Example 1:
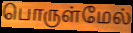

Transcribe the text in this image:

பொருள்மேல்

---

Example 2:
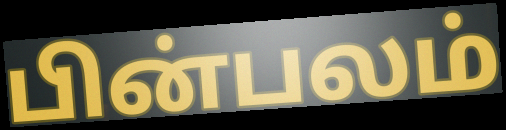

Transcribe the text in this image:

பின்பலம்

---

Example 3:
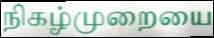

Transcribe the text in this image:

நிகழ்முறையை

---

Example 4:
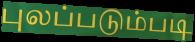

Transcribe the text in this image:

புலப்படும்படி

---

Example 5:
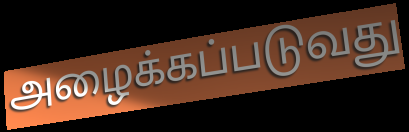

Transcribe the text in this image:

அழைக்கப்படுவது